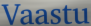
Vaastu